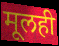
मूलही